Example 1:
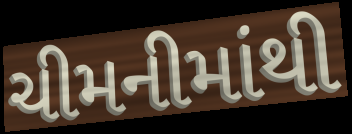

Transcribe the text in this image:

ચીમનીમાંથી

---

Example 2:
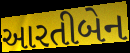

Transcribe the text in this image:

આરતીબેન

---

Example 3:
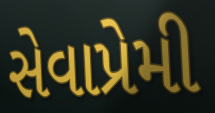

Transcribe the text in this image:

સેવાપ્રેમી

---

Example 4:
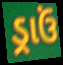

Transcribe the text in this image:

ડ્રાઉં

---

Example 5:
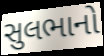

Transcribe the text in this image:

સુલભાનો